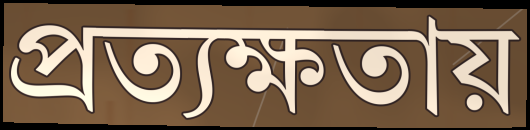
প্রত্যক্ষতায়